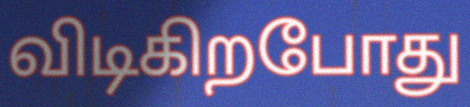
விடிகிறபோது